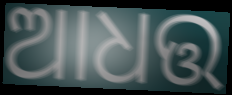
ଆଧତ୍ତ